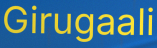
Girugaali